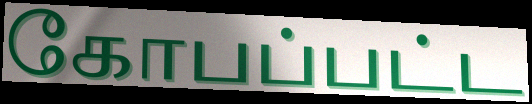
கோபப்பட்ட